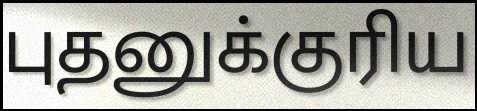
புதனுக்குரிய